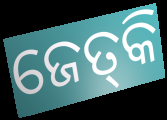
ଜେତ୍‌କି